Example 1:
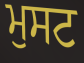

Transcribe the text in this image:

ਮੁਸਟ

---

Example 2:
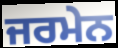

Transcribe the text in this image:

ਜਰਮੇਨ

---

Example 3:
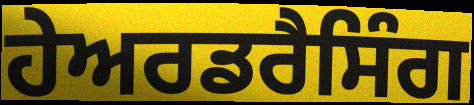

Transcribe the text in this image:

ਹੇਅਰਡਰੈਸਿੰਗ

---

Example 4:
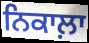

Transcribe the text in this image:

ਨਿਕਾਲ਼ਾ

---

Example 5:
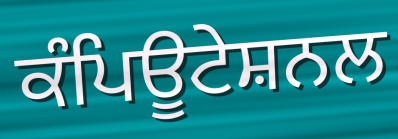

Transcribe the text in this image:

ਕੰਪਿਊਟੇਸ਼ਨਲ